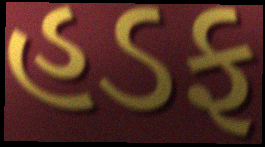
હડફ